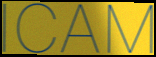
ICAM